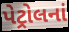
પેટ્રોલનાં